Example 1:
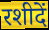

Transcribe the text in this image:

रशीदें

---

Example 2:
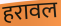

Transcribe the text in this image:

हरावल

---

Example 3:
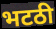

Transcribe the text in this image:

भटठी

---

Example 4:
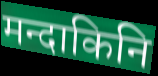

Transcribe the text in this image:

मन्दाकिनि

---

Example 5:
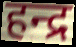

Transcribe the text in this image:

हन्द्र